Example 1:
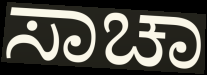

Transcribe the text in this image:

ಸಾಚಾ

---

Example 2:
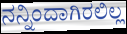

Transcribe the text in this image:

ನನ್ನಿಂದಾಗಿರಲಿಲ್ಲ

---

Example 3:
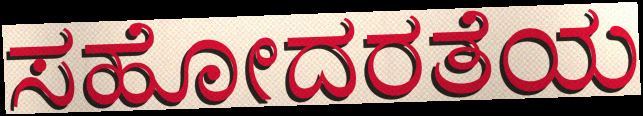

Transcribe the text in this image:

ಸಹೋದರತೆಯ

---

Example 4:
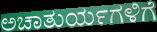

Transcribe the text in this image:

ಅಚಾತುರ್ಯಗಳಿಗೆ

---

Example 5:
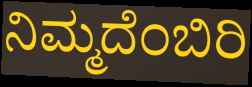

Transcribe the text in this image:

ನಿಮ್ಮದೆಂಬಿರಿ